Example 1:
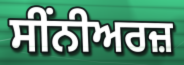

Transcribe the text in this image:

ਸੀਂਨੀਅਰਜ਼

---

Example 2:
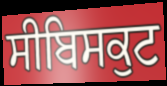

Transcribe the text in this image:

ਸੀਬਿਸਕੁਟ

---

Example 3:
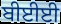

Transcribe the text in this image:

ਬੀਈਈ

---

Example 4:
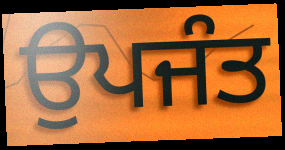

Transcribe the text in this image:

ਉਪਜੰਤ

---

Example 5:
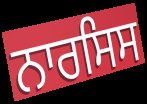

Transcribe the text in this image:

ਨਾਰਸਿਸ